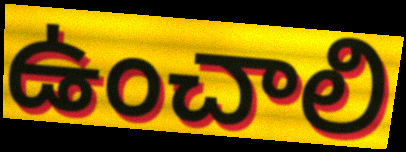
ఉంచాలి